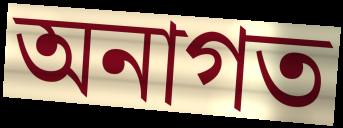
অনাগত